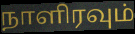
நாளிரவும்